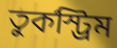
তুর্কস্ট্রিম